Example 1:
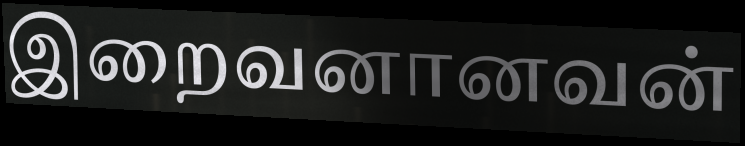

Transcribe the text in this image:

இறைவனானவன்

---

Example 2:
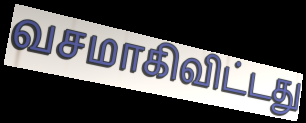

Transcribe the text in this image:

வசமாகிவிட்டது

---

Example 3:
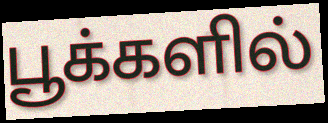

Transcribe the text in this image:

பூக்களில்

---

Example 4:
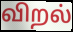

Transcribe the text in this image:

விறல்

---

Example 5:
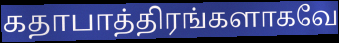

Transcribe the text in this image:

கதாபாத்திரங்களாகவே